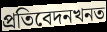
প্ৰতিবেদনখনত